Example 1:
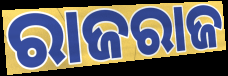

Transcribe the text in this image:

ରାଜରାଜ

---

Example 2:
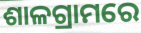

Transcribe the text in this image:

ଶାଳଗ୍ରାମରେ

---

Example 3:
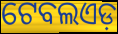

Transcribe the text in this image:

ଟେବଲଏଡ଼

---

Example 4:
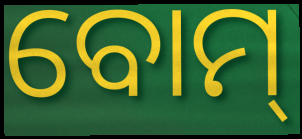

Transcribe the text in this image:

ବୋମ୍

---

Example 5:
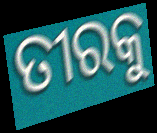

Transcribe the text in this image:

ତୀରକୁ